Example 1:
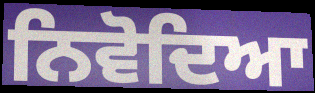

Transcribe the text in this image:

ਨਿਵੋਦਿਆ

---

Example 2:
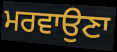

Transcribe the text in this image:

ਮਰਵਾਉਣਾ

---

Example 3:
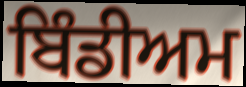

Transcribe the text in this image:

ਬਿੰਡੀਅਮ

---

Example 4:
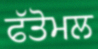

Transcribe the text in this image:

ਫੱਤੋਮਲ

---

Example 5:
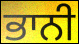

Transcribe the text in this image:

ਭਾਨੀ